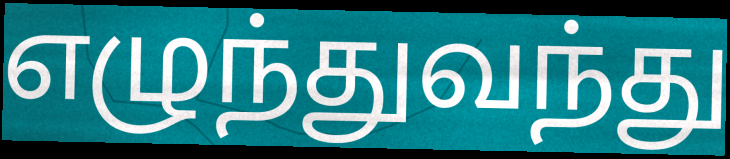
எழுந்துவந்து